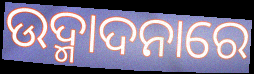
ଉଦ୍ମାଦନାରେ